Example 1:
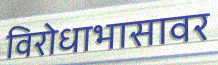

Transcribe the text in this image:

विरोधाभासावर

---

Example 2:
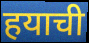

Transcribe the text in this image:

हयाची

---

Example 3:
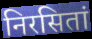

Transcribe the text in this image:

निरसितां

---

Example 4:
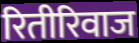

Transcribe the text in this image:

रितीरिवाज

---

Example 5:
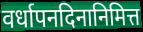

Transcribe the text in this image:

वर्धापनदिनानिमित्त